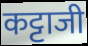
कट्टाजी